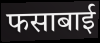
फसाबाई